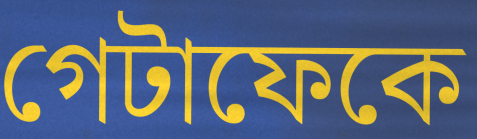
গেটাফেকে